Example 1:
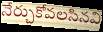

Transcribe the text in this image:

నేర్చుకోవలసినవి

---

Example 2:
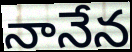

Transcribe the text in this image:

నానేన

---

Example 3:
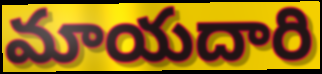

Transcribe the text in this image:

మాయదారి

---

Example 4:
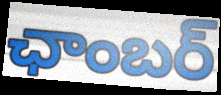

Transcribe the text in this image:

ఛాంబర్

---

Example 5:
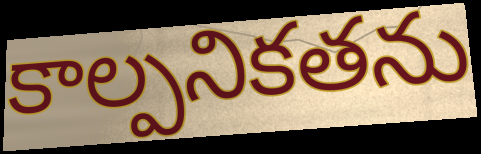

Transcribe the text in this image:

కాల్పనికతను